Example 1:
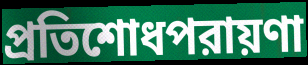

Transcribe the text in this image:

প্রতিশোধপরায়ণা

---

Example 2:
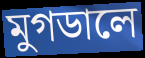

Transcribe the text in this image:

মুগডালে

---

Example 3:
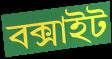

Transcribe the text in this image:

বক্সাইট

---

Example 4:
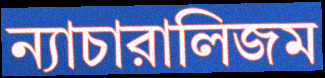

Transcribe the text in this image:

ন্যাচারালিজম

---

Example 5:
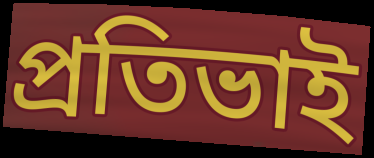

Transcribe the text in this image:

প্রতিভাই